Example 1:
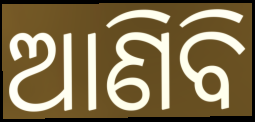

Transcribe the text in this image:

ଆଣିବି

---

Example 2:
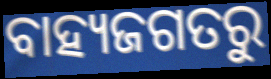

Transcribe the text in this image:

ବାହ୍ୟଜଗତରୁ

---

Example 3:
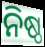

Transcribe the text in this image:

ନିଷ୍ଠ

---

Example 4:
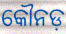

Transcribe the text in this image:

କୌନଡ଼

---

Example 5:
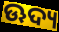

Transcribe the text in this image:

ଊଦ୍ୟ